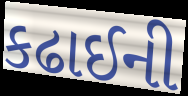
કઢાઈની